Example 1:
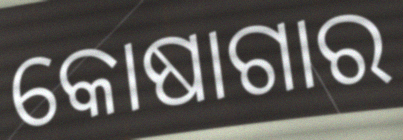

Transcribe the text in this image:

କୋଷାଗାର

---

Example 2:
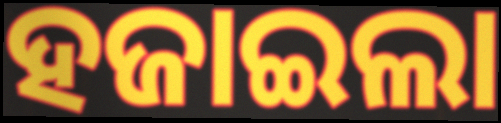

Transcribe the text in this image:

ହଜାଇଲା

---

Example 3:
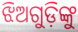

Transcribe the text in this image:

ଝିଅଗୁଡ଼ିଙ୍କୁ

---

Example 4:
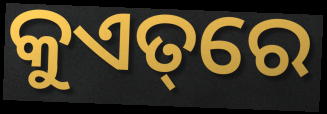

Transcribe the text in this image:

କୁଏତ୍‌ରେ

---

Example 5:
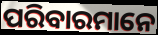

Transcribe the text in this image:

ପରିବାରମାନେ